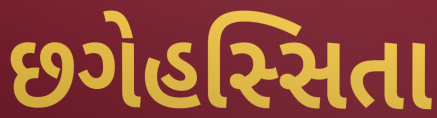
છગેહસ્સિતા